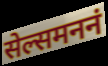
सेल्समननं